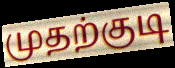
முதற்குடி